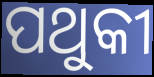
ପଥୁକୀ